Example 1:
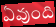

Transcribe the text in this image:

ఏవుంది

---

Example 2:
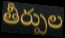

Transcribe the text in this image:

తీర్పుల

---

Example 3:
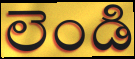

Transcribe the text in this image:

లెండి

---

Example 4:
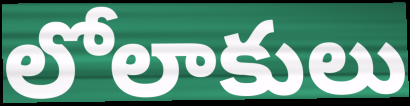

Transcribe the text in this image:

లోలాకులు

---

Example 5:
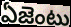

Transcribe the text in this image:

ఏజెంటు